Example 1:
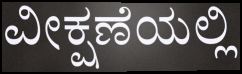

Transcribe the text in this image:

ವೀಕ್ಷಣೆಯಲ್ಲಿ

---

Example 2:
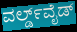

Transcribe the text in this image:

ವರ್ಲ್ಡ್‌ವೈಡ್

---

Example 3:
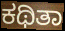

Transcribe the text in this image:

ಕಥಿತಾ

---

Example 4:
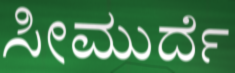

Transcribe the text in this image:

ಸೀಮುರ್ದೆ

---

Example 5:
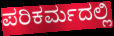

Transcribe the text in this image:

ಪರಿಕರ್ಮದಲ್ಲಿ